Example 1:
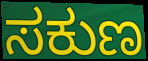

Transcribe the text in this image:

ಸಕುಣ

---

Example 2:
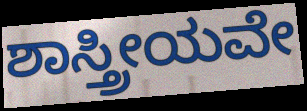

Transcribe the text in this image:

ಶಾಸ್ತ್ರೀಯವೇ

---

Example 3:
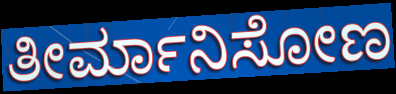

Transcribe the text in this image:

ತೀರ್ಮಾನಿಸೋಣ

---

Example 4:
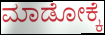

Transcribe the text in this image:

ಮಾಡೋಕ್ಕೆ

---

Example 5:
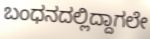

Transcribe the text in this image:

ಬಂಧನದಲ್ಲಿದ್ದಾಗಲೇ